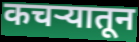
कचर्‍यातून